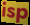
isp